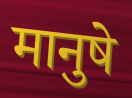
मानुषे